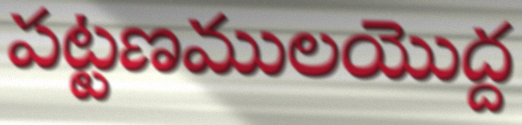
పట్టణములయొద్ద